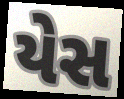
યેસ